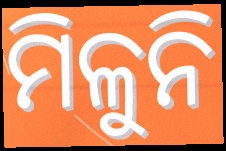
ମିଳୁନି